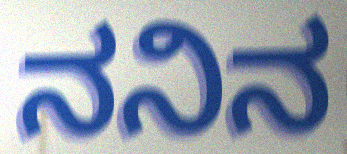
ನನಿನ